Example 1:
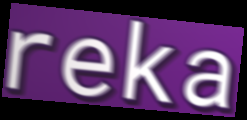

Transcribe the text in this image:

reka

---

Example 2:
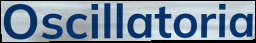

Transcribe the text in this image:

Oscillatoria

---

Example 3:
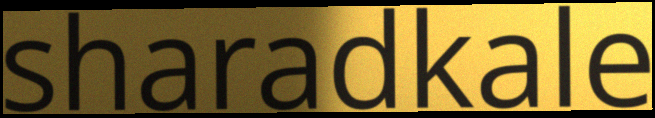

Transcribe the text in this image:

sharadkale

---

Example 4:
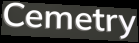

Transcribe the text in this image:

Cemetry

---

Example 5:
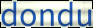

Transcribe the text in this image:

dondu